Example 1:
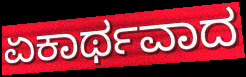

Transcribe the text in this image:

ಏಕಾರ್ಥವಾದ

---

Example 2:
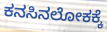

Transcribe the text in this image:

ಕನಸಿನಲೋಕಕ್ಕೆ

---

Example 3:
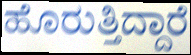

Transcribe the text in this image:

ಹೊರುತ್ತಿದ್ದಾರೆ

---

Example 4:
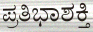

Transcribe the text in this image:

ಪ್ರತಿಭಾಶಕ್ತಿ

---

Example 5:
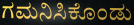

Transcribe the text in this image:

ಗಮನಿಸಿಕೊಂಡು